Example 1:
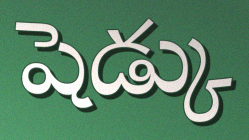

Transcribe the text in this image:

షెడ్కు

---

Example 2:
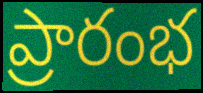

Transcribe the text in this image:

ప్రారంభ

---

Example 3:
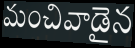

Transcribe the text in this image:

మంచివాడైన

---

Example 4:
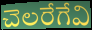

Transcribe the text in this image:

చెలరేగేవి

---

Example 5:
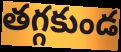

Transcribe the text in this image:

తగ్గకుండ